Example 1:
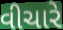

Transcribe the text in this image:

વીચારે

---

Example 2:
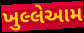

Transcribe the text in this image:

ખુલ્લેઆમ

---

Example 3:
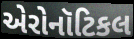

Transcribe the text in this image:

એરોનૉટિકલ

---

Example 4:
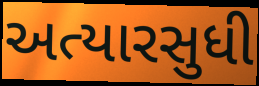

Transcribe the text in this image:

અત્યારસુધી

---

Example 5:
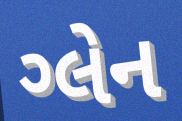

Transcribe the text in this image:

ગ્લેન